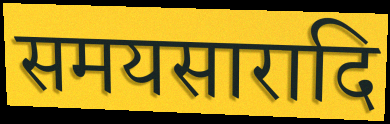
समयसारादि